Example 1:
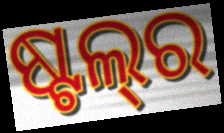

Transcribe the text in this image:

ଷ୍ଟଲ୍‌ର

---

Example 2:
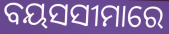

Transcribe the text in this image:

ବୟସସୀମାରେ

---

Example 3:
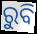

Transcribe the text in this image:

ରୁବି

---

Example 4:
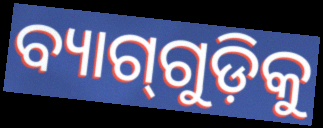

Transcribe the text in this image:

ବ୍ୟାଗ୍‍ଗୁଡ଼ିକୁ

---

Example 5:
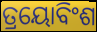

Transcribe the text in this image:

ତ୍ରୟୋବିଂଶ